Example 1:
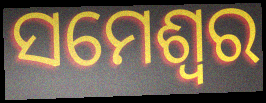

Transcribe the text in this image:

ସମେଶ୍ୱର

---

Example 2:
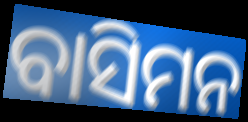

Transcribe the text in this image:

ବାସିମନ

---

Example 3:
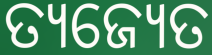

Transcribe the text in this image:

ତ୍ୟଜ୍ୟେତ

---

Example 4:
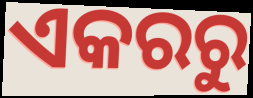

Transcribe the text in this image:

ଏକରରୁ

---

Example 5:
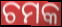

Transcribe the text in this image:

ଚମକ